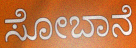
ಸೋಬಾನೆ